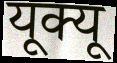
यूक्यू